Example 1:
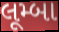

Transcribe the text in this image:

લૂમ્બા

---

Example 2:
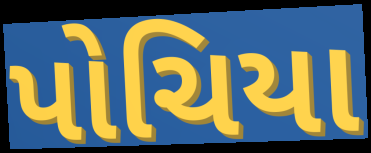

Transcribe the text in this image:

પોચિયા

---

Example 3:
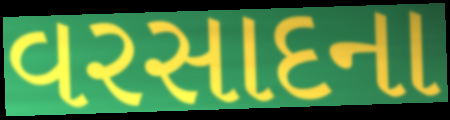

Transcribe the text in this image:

વરસાદના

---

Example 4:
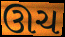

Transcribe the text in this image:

ઊચ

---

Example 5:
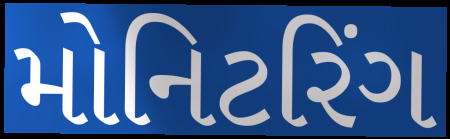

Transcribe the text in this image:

મોનિટરિંગ